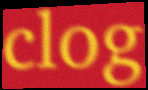
clog